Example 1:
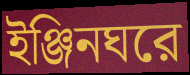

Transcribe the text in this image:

ইঞ্জিনঘরে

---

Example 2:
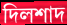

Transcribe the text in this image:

দিলশাদ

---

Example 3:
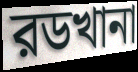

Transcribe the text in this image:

রডখানা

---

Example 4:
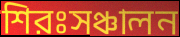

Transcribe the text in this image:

শিরঃসঞ্চালন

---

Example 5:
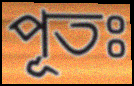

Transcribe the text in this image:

পূতঃ